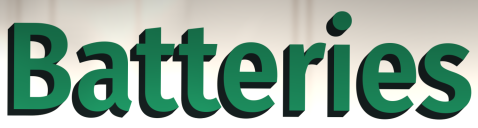
Batteries